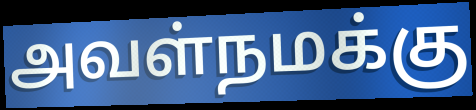
அவள்நமக்கு